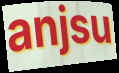
anjsu